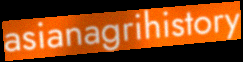
asianagrihistory